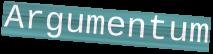
Argumentum